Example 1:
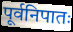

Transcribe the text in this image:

पूर्वनिपातः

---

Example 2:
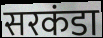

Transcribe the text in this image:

सरकंडा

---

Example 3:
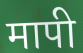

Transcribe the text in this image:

मापी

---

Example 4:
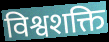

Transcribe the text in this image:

विश्वशक्ति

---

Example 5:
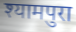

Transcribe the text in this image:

श्यामपुरा